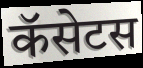
कॅसेटस